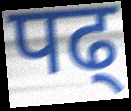
पढ्